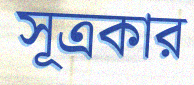
সূত্রকার